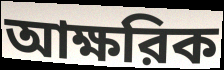
আক্ষরিক